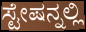
ಸ್ಟೇಷನ್ನಲ್ಲಿ